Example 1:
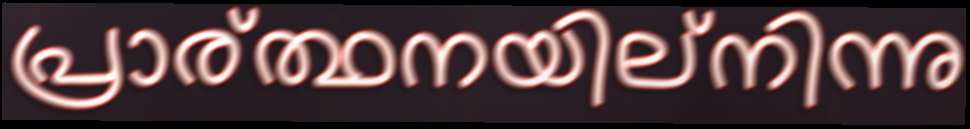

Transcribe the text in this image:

പ്രാര്ത്ഥനയില്നിന്നു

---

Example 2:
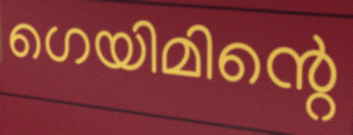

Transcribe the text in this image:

ഗെയിമിന്റെ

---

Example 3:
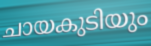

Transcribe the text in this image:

ചായകുടിയും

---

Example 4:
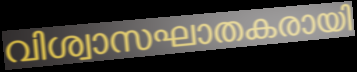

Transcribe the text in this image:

വിശ്വാസഘാതകരായി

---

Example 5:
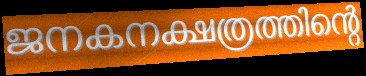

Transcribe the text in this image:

ജനകനക്ഷത്രത്തിന്റെ